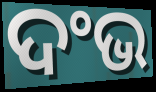
ଦଂଭ